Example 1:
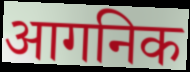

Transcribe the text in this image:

आगनिक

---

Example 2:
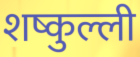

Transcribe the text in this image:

शष्कुल्ली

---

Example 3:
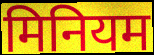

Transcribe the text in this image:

मिनियम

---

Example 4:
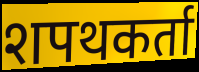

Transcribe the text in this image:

शपथकर्ता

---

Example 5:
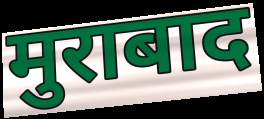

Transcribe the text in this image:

मुराबाद